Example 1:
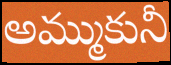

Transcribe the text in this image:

అమ్ముకునీ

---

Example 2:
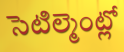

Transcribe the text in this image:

సెటిల్మెంట్లో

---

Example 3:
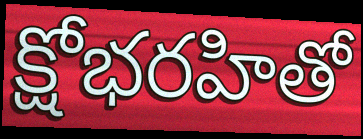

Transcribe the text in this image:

క్షోభరహితో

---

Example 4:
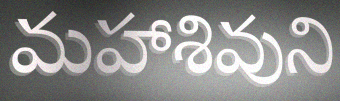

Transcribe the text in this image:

మహాశివుని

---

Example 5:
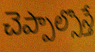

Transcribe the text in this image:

చెప్పాల్సొస్తే